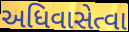
અધિવાસેત્વા